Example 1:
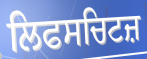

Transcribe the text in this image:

ਲਿਫਸਚਿਟਜ਼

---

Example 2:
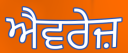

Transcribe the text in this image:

ਐਵਰੇਜ਼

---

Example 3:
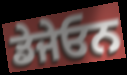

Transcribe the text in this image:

ਡੇਜੇਓਨ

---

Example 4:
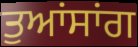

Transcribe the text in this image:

ਤੁਆਂਸਾਂਗ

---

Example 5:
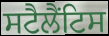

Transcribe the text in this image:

ਸਟੈਲੈਂਟਿਸ